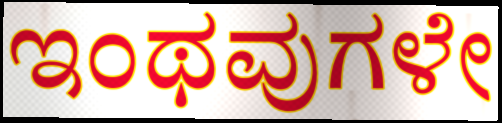
ಇಂಥವುಗಳೇ